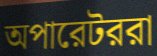
অপারেটররা